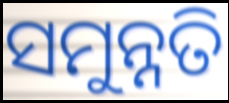
ସମୁନ୍ନତି